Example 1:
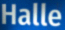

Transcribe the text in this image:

Halle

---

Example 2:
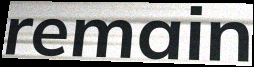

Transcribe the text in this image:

remain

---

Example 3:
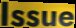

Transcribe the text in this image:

Issue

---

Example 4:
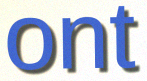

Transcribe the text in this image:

ont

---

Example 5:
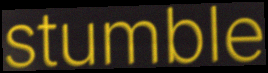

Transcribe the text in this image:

stumble